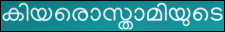
കിയരൊസ്താമിയുടെ